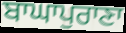
ਬਾਘਾਪੁਰਾਣਾ